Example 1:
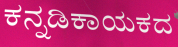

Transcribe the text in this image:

ಕನ್ನಡಿಕಾಯಕದ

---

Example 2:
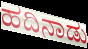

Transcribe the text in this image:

ಹದಿನಾಡು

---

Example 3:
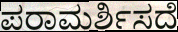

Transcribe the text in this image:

ಪರಾಮರ್ಶಿಸದೆ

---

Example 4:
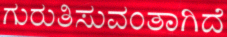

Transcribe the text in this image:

ಗುರುತಿಸುವಂತಾಗಿದೆ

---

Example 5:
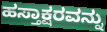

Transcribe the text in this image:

ಹಸ್ತಾಕ್ಷರವನ್ನು